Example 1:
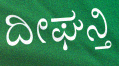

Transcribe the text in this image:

ದೀಘನ್ತಿ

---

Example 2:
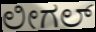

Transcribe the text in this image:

ಲೀಗಲ್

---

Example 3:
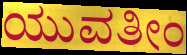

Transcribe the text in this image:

ಯುವತೀಂ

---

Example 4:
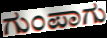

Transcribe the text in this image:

ಗುಂಪಾಗು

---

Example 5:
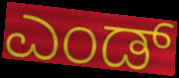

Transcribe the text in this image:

ಎಂಡ್